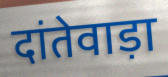
दांतेवाड़ा